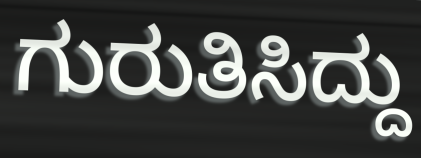
ಗುರುತಿಸಿದ್ದು